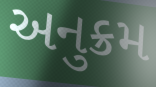
અનુક્રમ